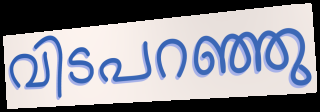
വിടപറഞ്ഞു